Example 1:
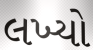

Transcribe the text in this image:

લખ્યો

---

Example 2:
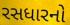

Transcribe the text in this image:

રસધારનો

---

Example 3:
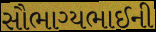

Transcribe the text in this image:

સૌભાગ્યભાઈની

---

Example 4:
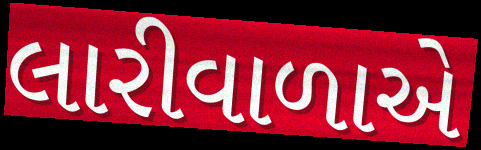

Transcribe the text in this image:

લારીવાળાએ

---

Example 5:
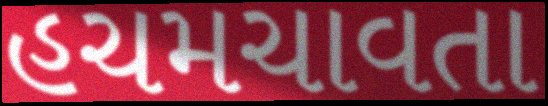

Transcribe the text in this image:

હચમચાવતા